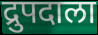
द्रुपदाला